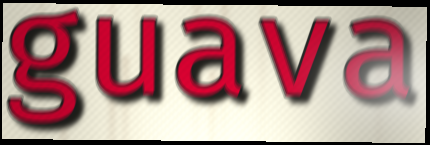
guava